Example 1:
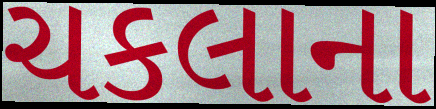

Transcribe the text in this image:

ચકલાના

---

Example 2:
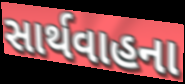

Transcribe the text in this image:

સાર્થવાહના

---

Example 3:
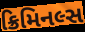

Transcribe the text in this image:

ક્રિમિનલ્સ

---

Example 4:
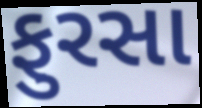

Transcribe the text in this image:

ફુરસા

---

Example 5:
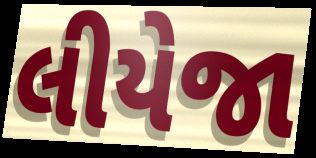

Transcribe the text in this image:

લીયેજા